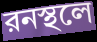
রনস্থলে